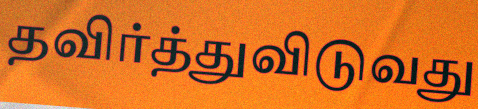
தவிர்த்துவிடுவது